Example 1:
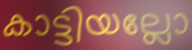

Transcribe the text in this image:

കാട്ടിയല്ലോ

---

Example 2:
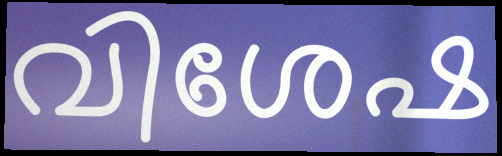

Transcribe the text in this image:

വിശേഷ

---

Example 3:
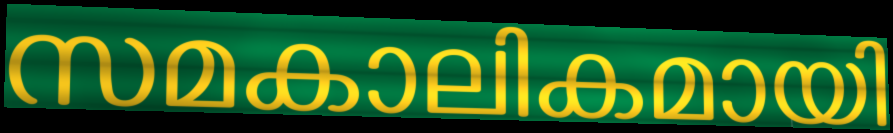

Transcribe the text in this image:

സമകാലികമായി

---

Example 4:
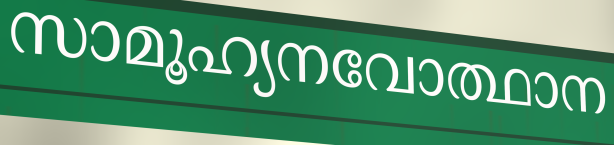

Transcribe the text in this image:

സാമൂഹ്യനവോത്ഥാന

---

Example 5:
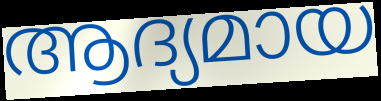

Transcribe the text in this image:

ആദ്യമായ